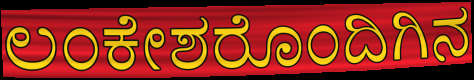
ಲಂಕೇಶರೊಂದಿಗಿನ